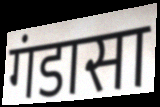
गंडासा